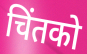
चिंतको